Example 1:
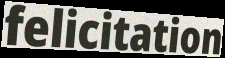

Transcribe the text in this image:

felicitation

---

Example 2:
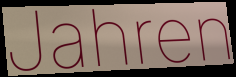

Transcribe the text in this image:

Jahren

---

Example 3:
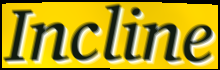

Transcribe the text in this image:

Incline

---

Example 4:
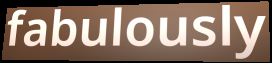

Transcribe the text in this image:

fabulously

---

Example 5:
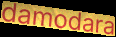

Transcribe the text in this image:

damodara